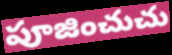
పూజించుచు